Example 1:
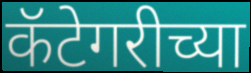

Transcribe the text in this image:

कॅटेगरीच्या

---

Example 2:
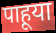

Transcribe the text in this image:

पाहूया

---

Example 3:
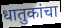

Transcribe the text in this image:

धातुकांचा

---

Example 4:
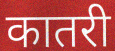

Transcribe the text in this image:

कातरी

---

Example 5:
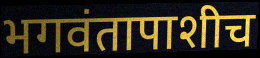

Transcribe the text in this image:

भगवंतापाशीच